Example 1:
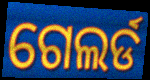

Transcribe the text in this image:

ଗେଲର୍ଡ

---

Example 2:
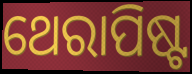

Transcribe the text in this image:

ଥେରାପିଷ୍ଟ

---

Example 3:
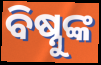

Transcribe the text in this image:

ବିଷ୍ନୁଙ୍କ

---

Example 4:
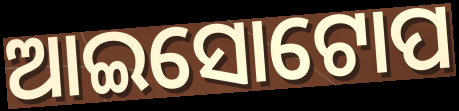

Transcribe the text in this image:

ଆଇସୋଟୋପ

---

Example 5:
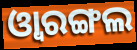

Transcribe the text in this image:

ଓ୍ବାରଙ୍ଗଲ